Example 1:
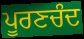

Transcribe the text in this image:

ਪੂਰਣਚੰਦ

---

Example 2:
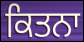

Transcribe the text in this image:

ਕਿਤਨਾ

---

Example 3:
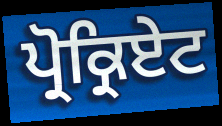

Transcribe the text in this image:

ਪ੍ਰੋਕ੍ਰਿਏਟ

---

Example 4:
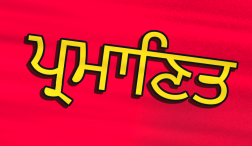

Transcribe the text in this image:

ਪ੍ਰਮਾਣਿਤ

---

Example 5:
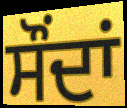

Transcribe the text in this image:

ਸੌਂਦਾਂ